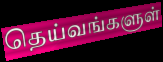
தெய்வங்களுள்